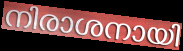
നിരാശനായി